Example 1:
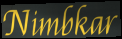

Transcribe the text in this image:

Nimbkar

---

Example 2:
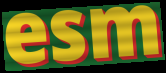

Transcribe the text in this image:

esm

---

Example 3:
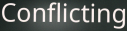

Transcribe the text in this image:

Conflicting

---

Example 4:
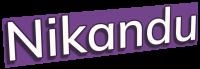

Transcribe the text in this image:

Nikandu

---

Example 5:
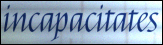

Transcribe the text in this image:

incapacitates